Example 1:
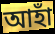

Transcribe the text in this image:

আহাঁ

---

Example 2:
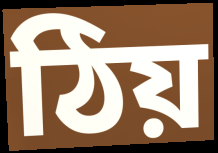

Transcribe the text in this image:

ঠিয়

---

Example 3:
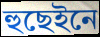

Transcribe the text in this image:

হুছেইনে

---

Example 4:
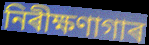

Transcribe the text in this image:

নিৰীক্ষণাগাৰ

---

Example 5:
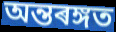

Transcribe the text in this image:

অন্তৰঙ্গত